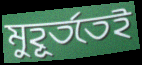
মুহূৰ্ততেই